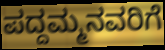
ಪದ್ದಮ್ಮನವರಿಗೆ